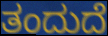
ತಂದುದೆ